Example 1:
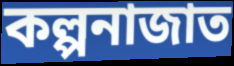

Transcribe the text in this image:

কল্পনাজাত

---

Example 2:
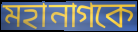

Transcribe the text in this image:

মহানাগকে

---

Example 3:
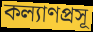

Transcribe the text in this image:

কল্যাণপ্রসূ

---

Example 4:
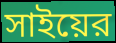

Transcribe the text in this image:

সাইয়ের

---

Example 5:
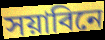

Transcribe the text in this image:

সয়াবিনে